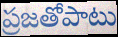
ప్రజతోపాటు